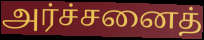
அர்ச்சனைத்